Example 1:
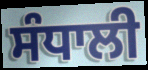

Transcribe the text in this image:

ਸੰਧਾਲੀ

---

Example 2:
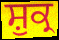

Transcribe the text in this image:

ਸ਼ੁਕ੍ਰ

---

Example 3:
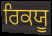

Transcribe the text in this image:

ਰਿਕਯੂ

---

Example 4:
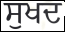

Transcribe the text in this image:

ਸੁਖਦ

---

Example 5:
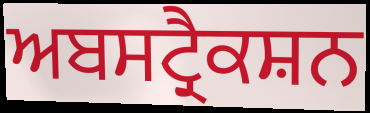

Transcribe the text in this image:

ਅਬਸਟ੍ਰੈਕਸ਼ਨ